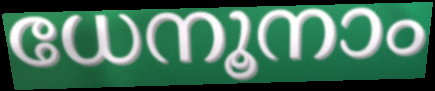
ധേനൂനാം